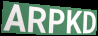
ARPKD